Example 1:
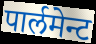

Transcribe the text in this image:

पार्लमेन्ट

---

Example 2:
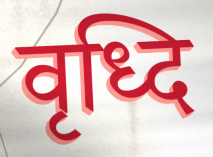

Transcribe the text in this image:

वृध्दि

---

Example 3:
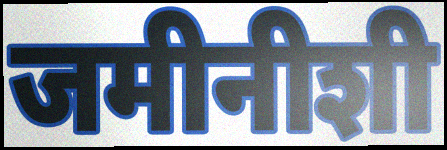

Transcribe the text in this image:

जमीनीशी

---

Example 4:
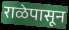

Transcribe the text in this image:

राळेपासून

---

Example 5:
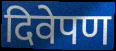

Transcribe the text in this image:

दिवेपण